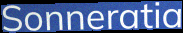
Sonneratia